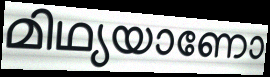
മിഥ്യയാണോ